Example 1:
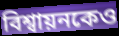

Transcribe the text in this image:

বিশ্বায়নকেও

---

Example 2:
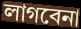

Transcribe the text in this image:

লাগবেনা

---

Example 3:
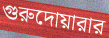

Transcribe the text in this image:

গুরুদোয়ারার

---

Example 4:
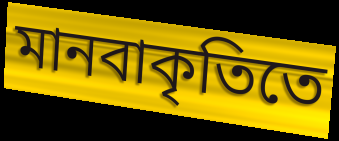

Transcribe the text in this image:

মানবাকৃতিতে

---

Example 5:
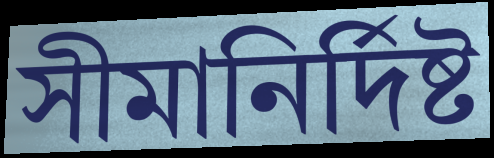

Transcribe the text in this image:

সীমানির্দিষ্ট